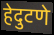
हेदुटणे